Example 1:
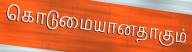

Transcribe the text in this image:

கொடுமையானதாகும்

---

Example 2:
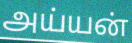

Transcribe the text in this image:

அய்யன்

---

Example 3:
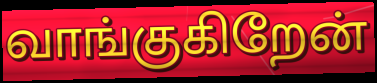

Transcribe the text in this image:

வாங்குகிறேன்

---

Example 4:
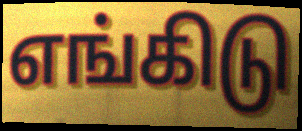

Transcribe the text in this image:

எங்கிடு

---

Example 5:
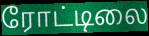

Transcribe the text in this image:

ரோட்டிலை